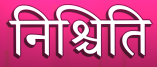
निश्चिति